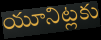
యూనిట్లకు